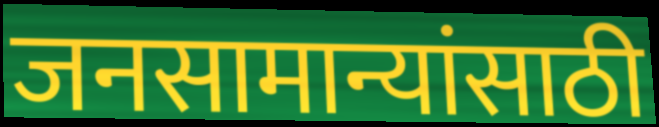
जनसामान्यांसाठी